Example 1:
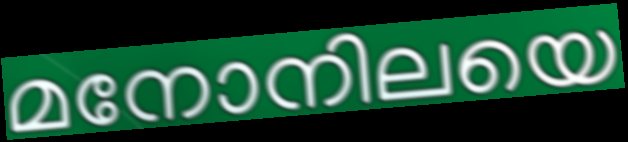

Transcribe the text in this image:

മനോനിലയെ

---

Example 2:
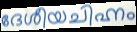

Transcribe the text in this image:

ദേശീയചിഹ്നം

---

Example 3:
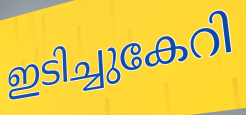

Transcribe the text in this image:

ഇടിച്ചുകേറി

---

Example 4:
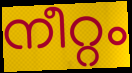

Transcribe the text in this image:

നീറ്റം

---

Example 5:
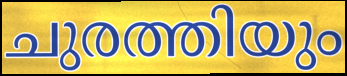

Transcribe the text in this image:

ചുരത്തിയും